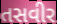
તસવીર